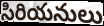
సిరియనులు